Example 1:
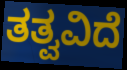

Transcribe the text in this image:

ತತ್ವವಿದೆ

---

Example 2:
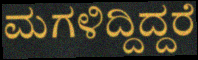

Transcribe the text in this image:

ಮಗಳಿದ್ದಿದ್ದರೆ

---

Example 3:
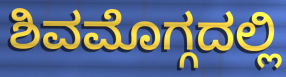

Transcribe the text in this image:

ಶಿವಮೊಗ್ಗದಲ್ಲಿ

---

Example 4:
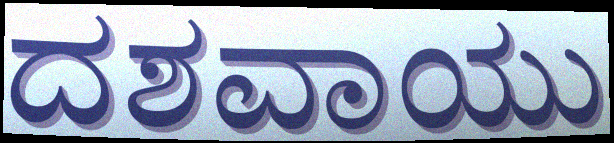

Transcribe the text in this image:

ದಶವಾಯು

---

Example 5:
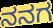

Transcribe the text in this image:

ನನಗ